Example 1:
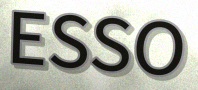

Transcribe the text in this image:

ESSO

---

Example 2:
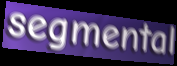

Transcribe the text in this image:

segmental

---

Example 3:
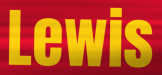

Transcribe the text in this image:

Lewis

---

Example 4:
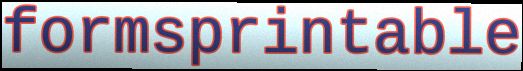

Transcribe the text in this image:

formsprintable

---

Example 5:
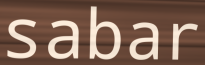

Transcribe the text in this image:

sabar